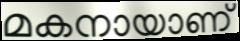
മകനായാണ്